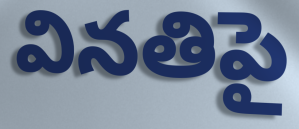
వినతిపై